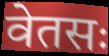
वेतसः